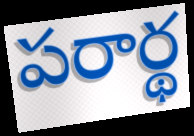
పరార్థ